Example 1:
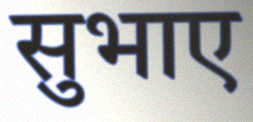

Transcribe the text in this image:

सुभाए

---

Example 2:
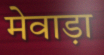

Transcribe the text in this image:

मेवाड़ा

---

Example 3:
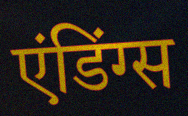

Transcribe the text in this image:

एंडिंग्स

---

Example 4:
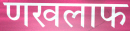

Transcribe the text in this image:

णखलाफ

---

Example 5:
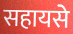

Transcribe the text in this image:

सहायसे